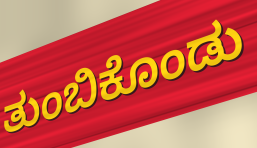
ತುಂಬಿಕೊಂಡು